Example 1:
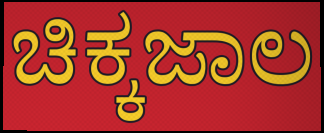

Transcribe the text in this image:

ಚಿಕ್ಕಜಾಲ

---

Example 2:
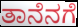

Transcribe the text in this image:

ತಾನೆನಗೆ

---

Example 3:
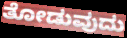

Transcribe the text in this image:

ತೋಡುವುದು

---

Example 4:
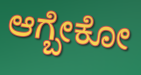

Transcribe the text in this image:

ಆಗ್ಬೇಕೋ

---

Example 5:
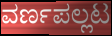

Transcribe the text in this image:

ವರ್ಣಪಲ್ಲಟ